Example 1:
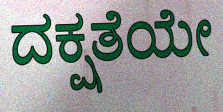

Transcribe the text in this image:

ದಕ್ಷತೆಯೇ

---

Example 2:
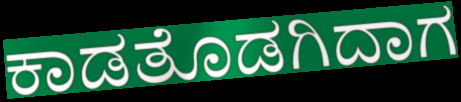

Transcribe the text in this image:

ಕಾಡತೊಡಗಿದಾಗ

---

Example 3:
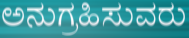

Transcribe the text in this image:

ಅನುಗ್ರಹಿಸುವರು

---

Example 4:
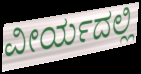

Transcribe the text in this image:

ವೀರ್ಯದಲ್ಲಿ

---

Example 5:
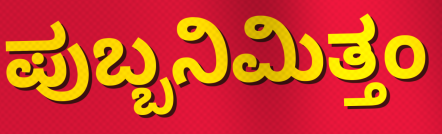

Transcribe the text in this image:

ಪುಬ್ಬನಿಮಿತ್ತಂ